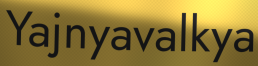
Yajnyavalkya